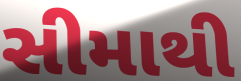
સીમાથી